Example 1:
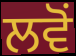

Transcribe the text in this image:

ਲਵੋਂ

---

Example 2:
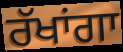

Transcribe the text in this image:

ਰੱਖਾਂਗਾ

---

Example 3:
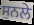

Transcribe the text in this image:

ਸੁਨਲੇ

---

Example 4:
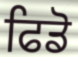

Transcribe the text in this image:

ਫਿਡੋ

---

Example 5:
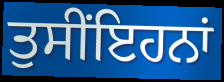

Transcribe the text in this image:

ਤੁਸੀਂਇਹਨਾਂ